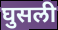
घुसली